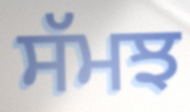
ਸੱਮਝ